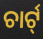
ଚାର୍ଟ୍